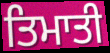
ਤਿਮਾਤੀ